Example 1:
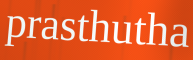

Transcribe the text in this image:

prasthutha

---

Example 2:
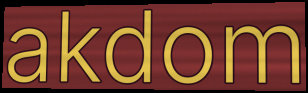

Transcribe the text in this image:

akdom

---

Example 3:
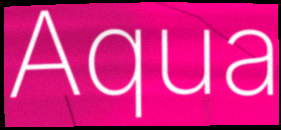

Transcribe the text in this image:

Aqua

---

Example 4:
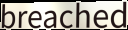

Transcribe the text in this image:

breached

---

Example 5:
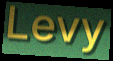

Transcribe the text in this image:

Levy